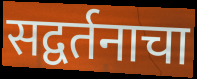
सद्वर्तनाचा